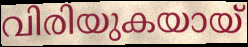
വിരിയുകയായ്